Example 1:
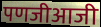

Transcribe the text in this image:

पणजीआजी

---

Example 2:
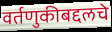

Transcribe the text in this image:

वर्तणुकीबद्दलचे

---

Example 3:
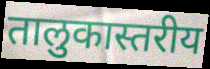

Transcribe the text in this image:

तालुकास्तरीय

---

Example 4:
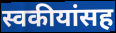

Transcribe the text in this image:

स्वकीयांसह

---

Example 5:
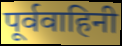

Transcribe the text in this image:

पूर्ववाहिनी